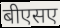
बीएसए